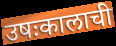
उषःकालाची